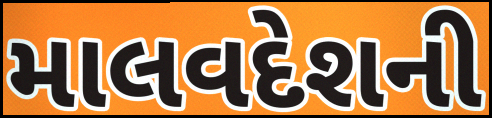
માલવદેશની